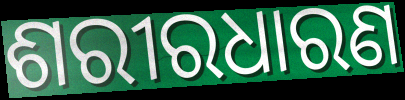
ଶରୀରଧାରଣ